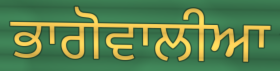
ਭਾਗੋਵਾਲੀਆ